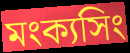
মংক্যসিং